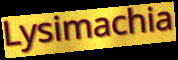
Lysimachia